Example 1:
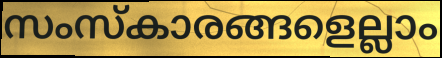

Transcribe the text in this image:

സംസ്കാരങ്ങളെല്ലാം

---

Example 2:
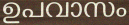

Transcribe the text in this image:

ഉപവാസം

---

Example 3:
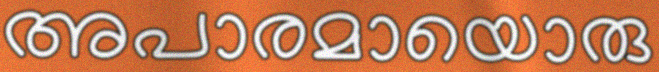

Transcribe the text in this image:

അപാരമായൊരു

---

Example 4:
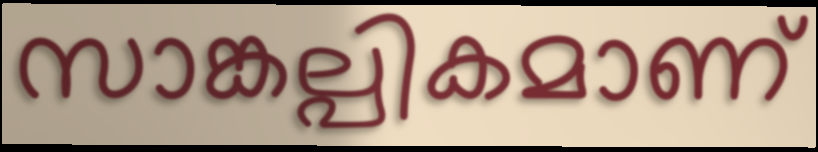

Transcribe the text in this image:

സാങ്കല്പികമാണ്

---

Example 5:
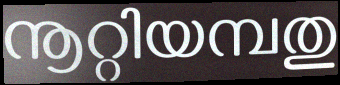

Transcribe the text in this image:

നൂറ്റിയമ്പതു